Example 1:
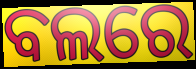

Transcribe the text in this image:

ବଲରେ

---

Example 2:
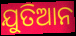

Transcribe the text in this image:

ଯୁତିଆନ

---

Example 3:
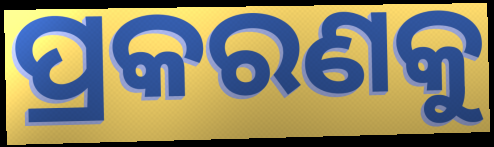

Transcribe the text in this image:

ପ୍ରକରଣକୁ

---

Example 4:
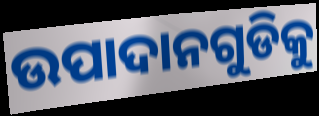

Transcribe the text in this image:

ଉପାଦାନଗୁଡିକୁ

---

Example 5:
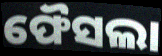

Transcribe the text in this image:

ଫୈସଲା